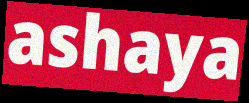
ashaya